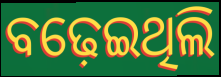
ବଢ଼େଇଥିଲି